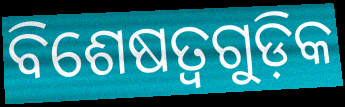
ବିଶେଷତ୍ୱଗୁଡ଼ିକ